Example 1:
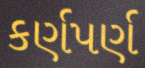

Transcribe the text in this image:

કર્ણપર્ણ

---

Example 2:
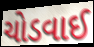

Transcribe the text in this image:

ચોડવાઈ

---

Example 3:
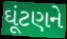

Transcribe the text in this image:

ઘૂંટણને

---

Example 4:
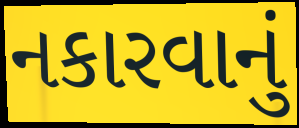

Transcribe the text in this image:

નકારવાનું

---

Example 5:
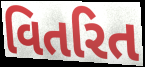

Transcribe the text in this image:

વિતરિત